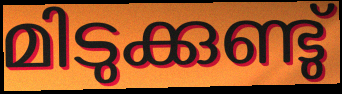
മിടുക്കുണ്ടു്